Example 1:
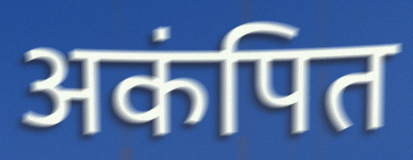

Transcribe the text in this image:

अकंपित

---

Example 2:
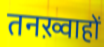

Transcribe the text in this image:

तनख़्वाहों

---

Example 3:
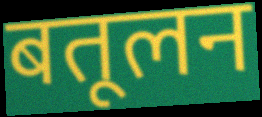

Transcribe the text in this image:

बतूलन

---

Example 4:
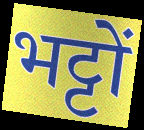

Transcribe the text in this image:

भट्टों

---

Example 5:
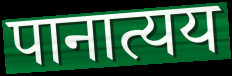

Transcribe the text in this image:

पानात्यय